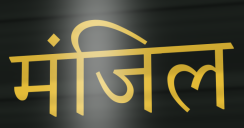
मंजिल